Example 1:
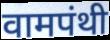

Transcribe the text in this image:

वामपंथी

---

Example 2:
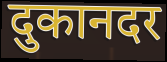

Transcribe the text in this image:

दुकानदर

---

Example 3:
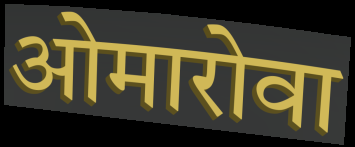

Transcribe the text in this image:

ओमारोवा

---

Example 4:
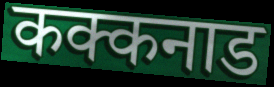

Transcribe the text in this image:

कक्कनाड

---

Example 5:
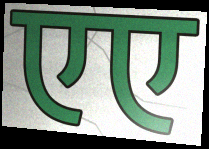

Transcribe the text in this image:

एए